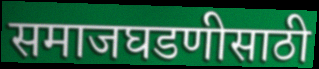
समाजघडणीसाठी